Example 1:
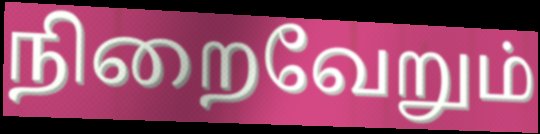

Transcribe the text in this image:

நிறைவேறும்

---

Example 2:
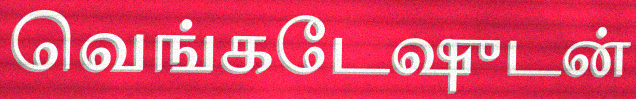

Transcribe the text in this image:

வெங்கடேஷுடன்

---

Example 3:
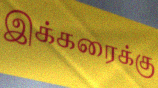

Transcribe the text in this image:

இக்கரைக்கு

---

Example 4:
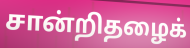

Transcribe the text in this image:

சான்றிதழைக்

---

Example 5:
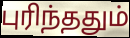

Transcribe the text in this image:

புரிந்ததும்